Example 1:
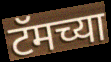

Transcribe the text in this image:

टॅमच्या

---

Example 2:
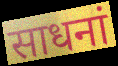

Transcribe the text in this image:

साधनां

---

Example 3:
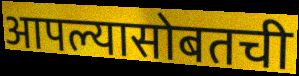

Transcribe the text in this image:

आपल्यासोबतची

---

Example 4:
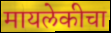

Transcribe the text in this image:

मायलेकीचा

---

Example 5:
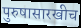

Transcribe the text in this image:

पुरुषासारखीच